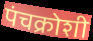
पंचक्रोशी